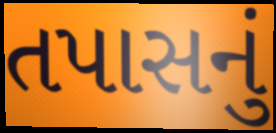
તપાસનું